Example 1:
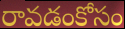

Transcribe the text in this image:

రావడంకోసం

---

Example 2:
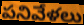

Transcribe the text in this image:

పనివేళలు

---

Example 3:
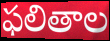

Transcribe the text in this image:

ఫలితాల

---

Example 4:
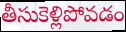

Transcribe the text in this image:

తీసుకెళ్లిపోవడం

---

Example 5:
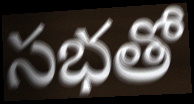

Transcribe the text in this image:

సభతో